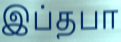
இப்தபா